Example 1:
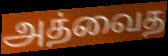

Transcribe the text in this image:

அத்வைத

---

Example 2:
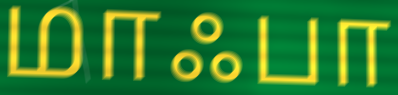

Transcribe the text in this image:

மாஃபா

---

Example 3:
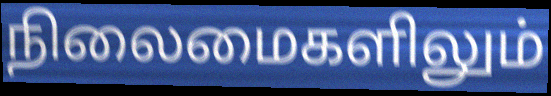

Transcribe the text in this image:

நிலைமைகளிலும்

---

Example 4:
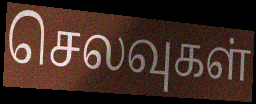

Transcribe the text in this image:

செலவுகள்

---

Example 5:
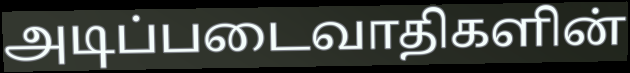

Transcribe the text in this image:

அடிப்படைவாதிகளின்